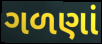
ગળણાં